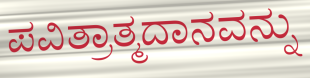
ಪವಿತ್ರಾತ್ಮದಾನವನ್ನು